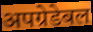
अपग्रेडेबल